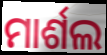
ମାର୍ଶଲ